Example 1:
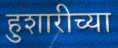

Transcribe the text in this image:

हुशारीच्या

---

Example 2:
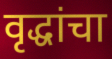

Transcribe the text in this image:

वृद्धांचा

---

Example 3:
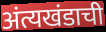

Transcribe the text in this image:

अंत्यखंडाची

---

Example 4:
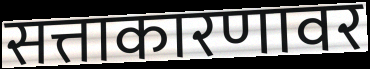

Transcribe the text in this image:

सत्ताकारणावर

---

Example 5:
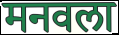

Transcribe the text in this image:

मनवला